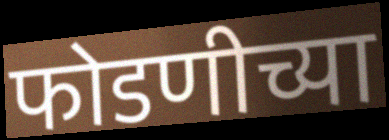
फोडणीच्या